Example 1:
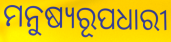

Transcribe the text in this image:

ମନୁଷ୍ୟରୂପଧାରୀ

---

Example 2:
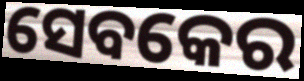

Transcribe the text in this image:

ସେବକେର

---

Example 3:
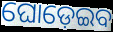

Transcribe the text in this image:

ଘୋଡ଼େଇବ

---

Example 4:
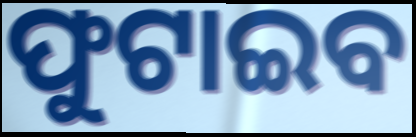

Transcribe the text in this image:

ଫୁଟାଇବ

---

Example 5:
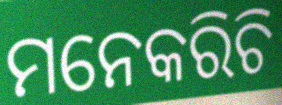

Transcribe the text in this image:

ମନେକରିଚି